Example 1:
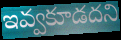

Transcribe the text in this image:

ఇవ్వకూడదని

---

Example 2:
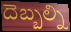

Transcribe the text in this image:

దెబ్బల్ని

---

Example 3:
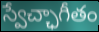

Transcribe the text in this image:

స్వేచ్ఛాగీతం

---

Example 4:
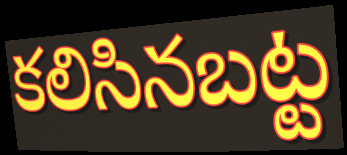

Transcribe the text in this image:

కలిసినబట్ట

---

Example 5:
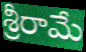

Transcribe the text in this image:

శ్రీరామే